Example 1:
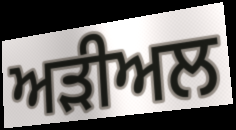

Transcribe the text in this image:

ਅੜੀਅਲ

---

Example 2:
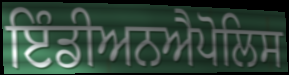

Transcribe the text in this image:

ਇੰਡੀਅਨਐਪੋਲਿਸ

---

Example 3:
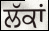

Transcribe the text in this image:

ਲੱਕਾਂ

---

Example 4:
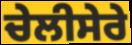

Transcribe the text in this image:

ਚੇਲੀਸੇਰੇ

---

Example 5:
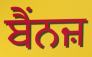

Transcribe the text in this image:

ਬੈਂਨਜ਼